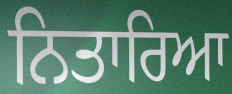
ਨਿਤਾਰਿਆ